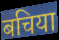
बचिया